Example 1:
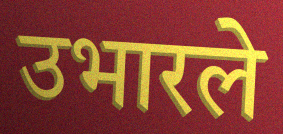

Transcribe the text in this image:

उभारले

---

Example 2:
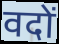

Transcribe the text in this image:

वदों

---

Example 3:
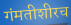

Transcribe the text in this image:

गंमतीशीरच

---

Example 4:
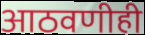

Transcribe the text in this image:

आठवणीही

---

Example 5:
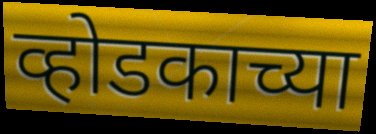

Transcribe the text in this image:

व्होडकाच्या